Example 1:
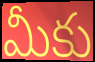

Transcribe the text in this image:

మీకు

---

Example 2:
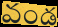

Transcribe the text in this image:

వండ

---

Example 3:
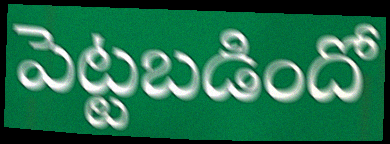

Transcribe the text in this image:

పెట్టబడిందో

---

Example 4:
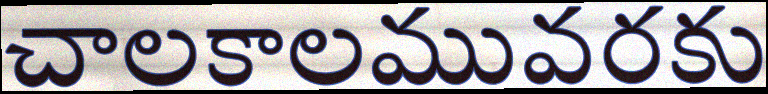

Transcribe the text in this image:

చాలకాలమువరకు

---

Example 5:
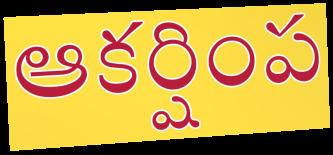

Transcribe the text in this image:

ఆకర్షింప